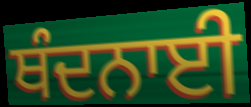
ਥੰਦਨਾਈ